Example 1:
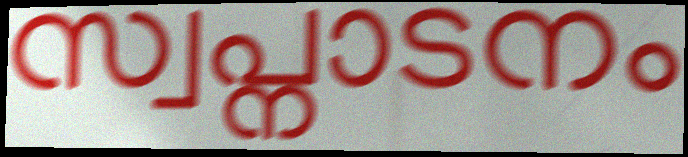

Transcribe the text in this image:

സ്വപ്നാടനം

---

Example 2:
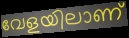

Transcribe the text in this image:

വേളയിലാണ്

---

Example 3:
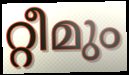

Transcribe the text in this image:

റ്റീമും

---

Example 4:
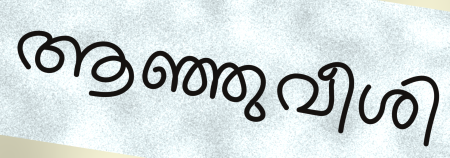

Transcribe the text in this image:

ആഞ്ഞുവീശി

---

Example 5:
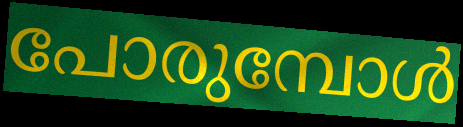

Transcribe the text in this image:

പോരുമ്പോൾ